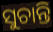
ସୁଚାନ୍ତି